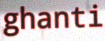
ghanti